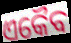
ଏକୈବ